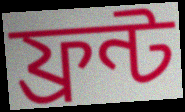
ফ্রন্ট